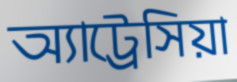
অ্যাট্রেসিয়া